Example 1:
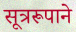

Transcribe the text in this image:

सूत्ररूपाने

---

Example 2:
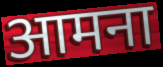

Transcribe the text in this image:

आमना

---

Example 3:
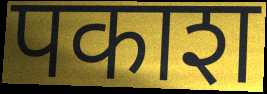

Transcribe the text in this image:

पकाश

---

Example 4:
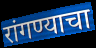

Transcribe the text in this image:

रांगण्याचा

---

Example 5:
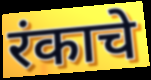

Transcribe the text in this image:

रंकाचे